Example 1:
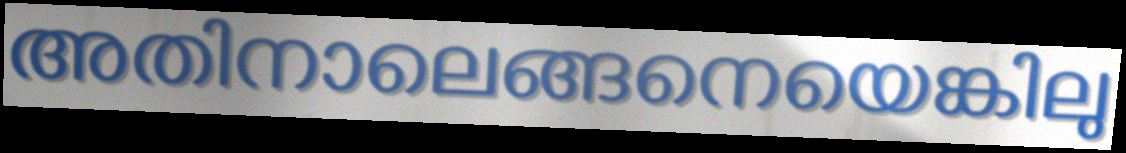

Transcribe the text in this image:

അതിനാലെങ്ങനെയെങ്കിലു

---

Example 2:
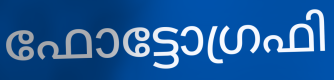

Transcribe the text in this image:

ഫോട്ടോഗ്രഫി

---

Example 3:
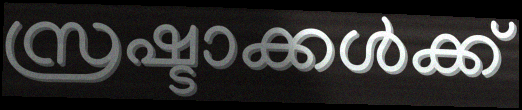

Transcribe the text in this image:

സ്രഷ്ടാക്കൾക്ക്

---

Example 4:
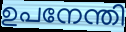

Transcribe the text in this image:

ഉപനേന്തി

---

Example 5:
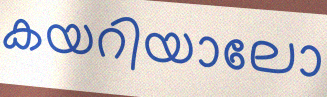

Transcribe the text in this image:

കയറിയാലോ